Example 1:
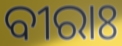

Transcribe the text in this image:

ବୀରାଃ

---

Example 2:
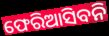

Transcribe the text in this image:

ଫେରିଆସିବନି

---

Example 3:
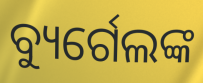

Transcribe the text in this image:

ବ୍ୟୁର୍ଗେଲଙ୍କ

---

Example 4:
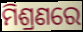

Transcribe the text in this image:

ମିଶ୍ରଣରେ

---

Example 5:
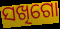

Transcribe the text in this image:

ସଖିଗୋ